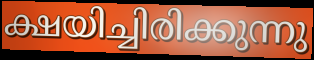
ക്ഷയിച്ചിരിക്കുന്നു